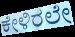
ಕೇಳಿರಲೇ